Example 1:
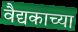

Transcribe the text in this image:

वैद्यकाच्या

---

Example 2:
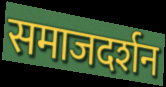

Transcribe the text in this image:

समाजदर्शन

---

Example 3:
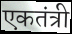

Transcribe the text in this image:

एकतंत्री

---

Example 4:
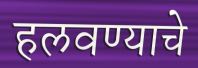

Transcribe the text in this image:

हलवण्याचे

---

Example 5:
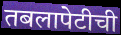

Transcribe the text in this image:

तबलापेटीची